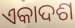
ଏକାଦଶ